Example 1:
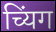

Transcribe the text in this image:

च्यिंग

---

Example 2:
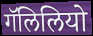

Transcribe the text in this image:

गॅलिलियो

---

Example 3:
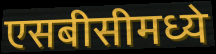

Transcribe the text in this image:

एसबीसीमध्ये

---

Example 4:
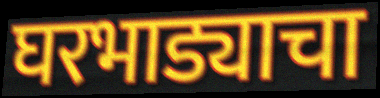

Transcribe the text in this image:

घरभाड्याचा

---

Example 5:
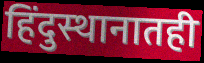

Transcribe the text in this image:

हिंदुस्थानातही